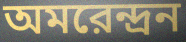
অমরেন্দ্রন